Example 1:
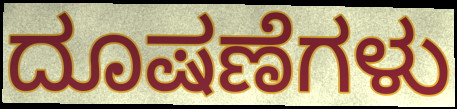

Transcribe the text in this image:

ದೂಷಣೆಗಳು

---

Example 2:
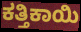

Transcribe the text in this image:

ಕತ್ತಿಕಾಯಿ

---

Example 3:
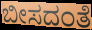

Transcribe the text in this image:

ಬೀಸದಂತೆ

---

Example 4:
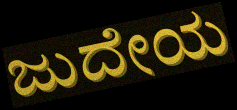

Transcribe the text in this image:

ಜುದೇಯ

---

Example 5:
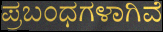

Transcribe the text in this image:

ಪ್ರಬಂಧಗಳಾಗಿವೆ